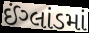
ઈંગ્લાંડમાં